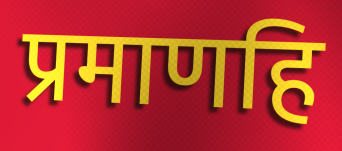
प्रमाणहि